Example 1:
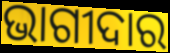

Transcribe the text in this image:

ଭାଗୀଦାର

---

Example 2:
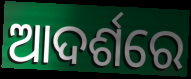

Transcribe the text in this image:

ଆଦର୍ଶରେ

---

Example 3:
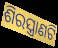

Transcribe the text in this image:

ଶିରସ୍ତ୍ରାଣଟି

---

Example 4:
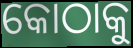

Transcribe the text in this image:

କୋଠାକୁ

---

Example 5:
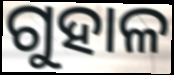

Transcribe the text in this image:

ଗୁହାଳ